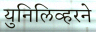
युनिलिव्हरने